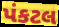
પંકટલ